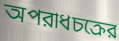
অপরাধচক্রের